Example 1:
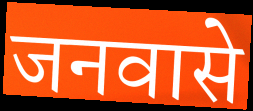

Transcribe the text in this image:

जनवासे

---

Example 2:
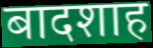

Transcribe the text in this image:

बादशाह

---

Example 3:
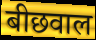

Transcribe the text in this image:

बीछवाल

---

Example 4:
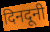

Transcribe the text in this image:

दिनदूनी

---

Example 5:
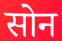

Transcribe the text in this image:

सोन